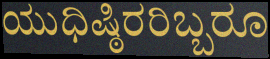
ಯುಧಿಷ್ಠಿರರಿಬ್ಬರೂ